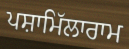
ਪਸ਼ਾਮਿੱਲਾਰਾਮ